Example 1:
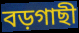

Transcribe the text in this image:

বড়গাছী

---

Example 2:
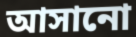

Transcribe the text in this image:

আসানো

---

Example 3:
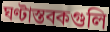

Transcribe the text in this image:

ঘণ্টাস্তবকগুলি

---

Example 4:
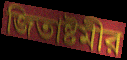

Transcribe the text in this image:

জিতাষ্টমীর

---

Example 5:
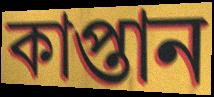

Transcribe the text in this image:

কাপ্তান